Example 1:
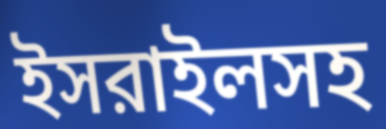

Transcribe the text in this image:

ইসরাইলসহ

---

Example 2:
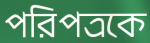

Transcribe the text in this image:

পরিপত্রকে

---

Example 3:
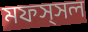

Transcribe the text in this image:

মফস্‌সল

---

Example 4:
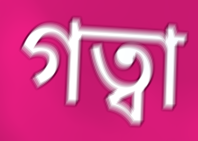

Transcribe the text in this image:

গত্বা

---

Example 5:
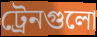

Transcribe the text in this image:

ট্রেনগুলো